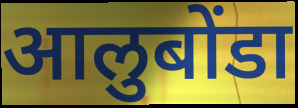
आलुबोंडा